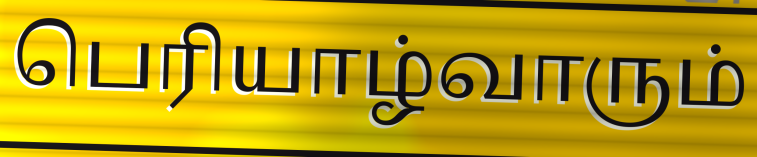
பெரியாழ்வாரும்